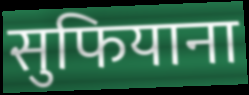
सुफियाना